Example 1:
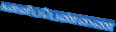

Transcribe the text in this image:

கன்னிப்பெண்ணை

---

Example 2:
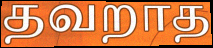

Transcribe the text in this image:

தவறாத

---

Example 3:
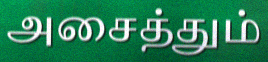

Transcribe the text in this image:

அசைத்தும்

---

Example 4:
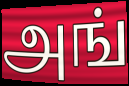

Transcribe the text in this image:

அங்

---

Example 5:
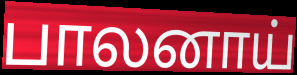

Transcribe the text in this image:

பாலனாய்